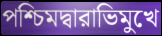
পশ্চিমদ্বারাভিমুখে